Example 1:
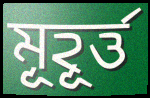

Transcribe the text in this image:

মূহূর্ত্ত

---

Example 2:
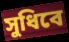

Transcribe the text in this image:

সুধিবে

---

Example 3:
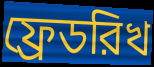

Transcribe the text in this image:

ফ্রেডরিখ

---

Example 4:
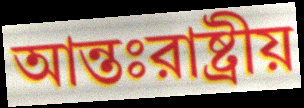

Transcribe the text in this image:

আন্তঃরাষ্ট্রীয়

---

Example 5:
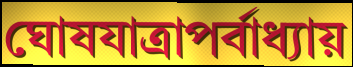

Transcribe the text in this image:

ঘোষযাত্রাপর্বাধ্যায়